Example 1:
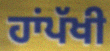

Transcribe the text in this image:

ਹਾਂਪੱਖੀ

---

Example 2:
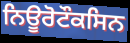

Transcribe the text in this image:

ਨਿਊਰੋਟੌਕਸਿਨ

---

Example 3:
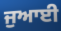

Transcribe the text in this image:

ਜੁਆਈ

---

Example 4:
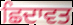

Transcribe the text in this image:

ਛਿਦਾਵਤ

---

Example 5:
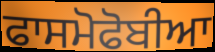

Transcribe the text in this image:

ਫਾਸਮੋਫੋਬੀਆ